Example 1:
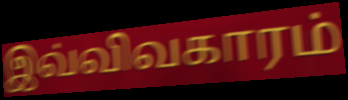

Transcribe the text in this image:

இவ்விவகாரம்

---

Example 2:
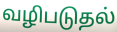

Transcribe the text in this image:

வழிபடுதல்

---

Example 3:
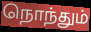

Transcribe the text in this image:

நொந்தும்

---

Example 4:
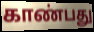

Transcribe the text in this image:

காண்பது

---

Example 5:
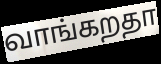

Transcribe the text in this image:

வாங்கறதா